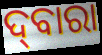
ଦ୍‌ବାରା